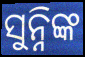
ସୁନ୍ନିଙ୍କ